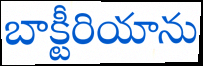
బాక్టీరియాను